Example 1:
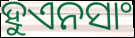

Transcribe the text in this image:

ହୁଏନସାଂ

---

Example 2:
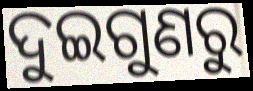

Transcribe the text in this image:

ଦୁଇଗୁଣରୁ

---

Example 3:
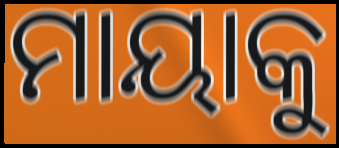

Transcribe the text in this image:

ମାୟାକୁ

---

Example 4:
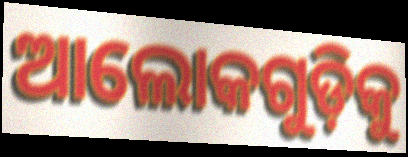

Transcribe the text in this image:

ଆଲୋକଗୁଡ଼ିକୁ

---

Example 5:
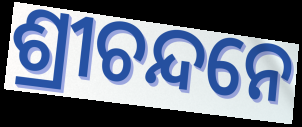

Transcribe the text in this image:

ଶ୍ରୀଚନ୍ଦନେ